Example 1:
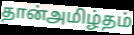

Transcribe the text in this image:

தான்அமிழ்தம்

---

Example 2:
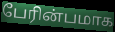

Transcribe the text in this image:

பேரின்பமாக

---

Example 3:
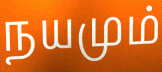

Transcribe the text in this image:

நயமும்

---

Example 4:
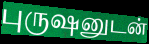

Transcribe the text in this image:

புருஷனுடன்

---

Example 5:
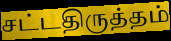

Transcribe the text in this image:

சட்டதிருத்தம்